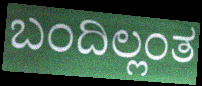
ಬಂದಿಲ್ಲಂತ